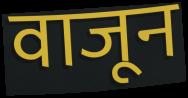
वाजून